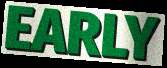
EARLY